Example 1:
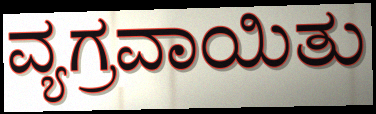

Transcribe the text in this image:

ವ್ಯಗ್ರವಾಯಿತು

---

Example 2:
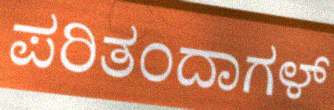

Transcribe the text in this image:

ಪರಿತಂದಾಗಳ್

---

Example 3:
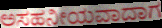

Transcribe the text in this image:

ಅಸಹನೀಯವಾದಾಗ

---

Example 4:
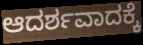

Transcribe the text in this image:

ಆದರ್ಶವಾದಕ್ಕೆ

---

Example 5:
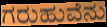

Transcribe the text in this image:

ಗರುಹುವೆನು